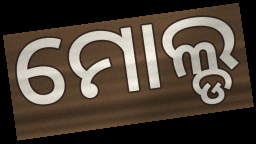
ମୋଲ୍ଡ